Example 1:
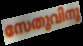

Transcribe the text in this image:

സേതുവിനു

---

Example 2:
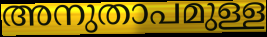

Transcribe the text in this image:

അനുതാപമുള്ള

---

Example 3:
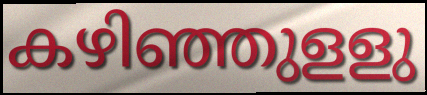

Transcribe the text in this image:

കഴിഞ്ഞുളളു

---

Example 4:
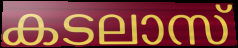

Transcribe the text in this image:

കടലാസ്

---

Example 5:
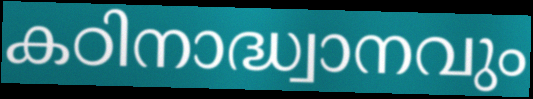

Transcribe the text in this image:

കഠിനാദ്ധ്വാനവും